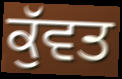
ਕੁੱਵਤ